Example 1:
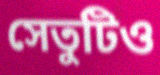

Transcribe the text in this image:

সেতুটিও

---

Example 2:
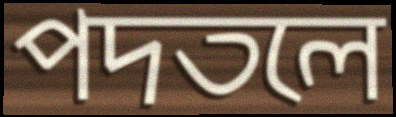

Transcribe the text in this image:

পদতলে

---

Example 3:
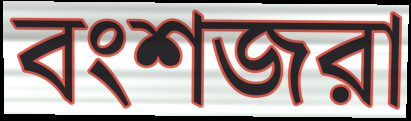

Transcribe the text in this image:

বংশজরা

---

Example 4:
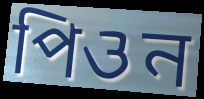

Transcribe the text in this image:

পিওন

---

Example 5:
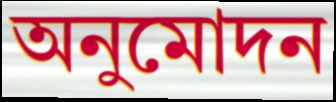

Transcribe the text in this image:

অনুমোদন